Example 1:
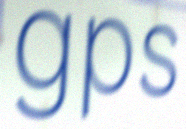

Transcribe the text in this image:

gps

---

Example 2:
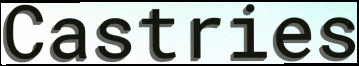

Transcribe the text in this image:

Castries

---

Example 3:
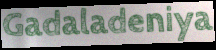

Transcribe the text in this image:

Gadaladeniya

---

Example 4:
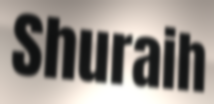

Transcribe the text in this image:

Shuraih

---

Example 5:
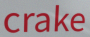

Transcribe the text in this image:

crake